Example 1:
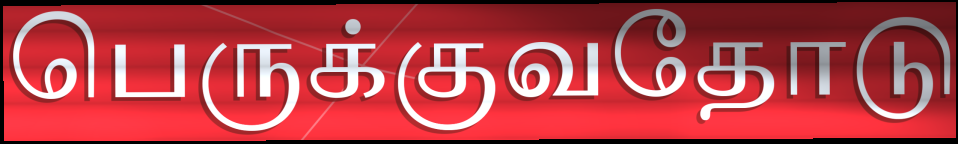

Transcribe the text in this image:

பெருக்குவதோடு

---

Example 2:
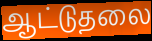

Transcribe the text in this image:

ஆட்டுதலை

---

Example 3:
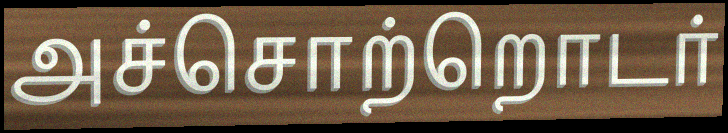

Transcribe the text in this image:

அச்சொற்றொடர்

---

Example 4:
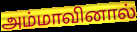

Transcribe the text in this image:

அம்மாவினால்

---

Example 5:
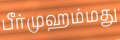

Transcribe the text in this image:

பீர்முஹம்மது